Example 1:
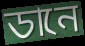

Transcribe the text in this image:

ডানে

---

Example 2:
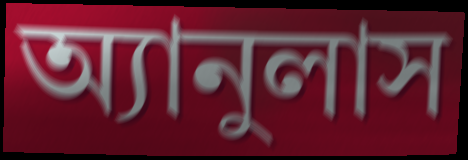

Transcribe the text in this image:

অ্যানুলাস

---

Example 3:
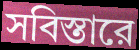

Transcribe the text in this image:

সবিস্তারে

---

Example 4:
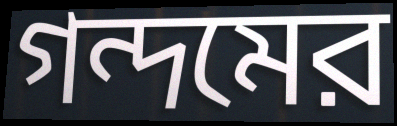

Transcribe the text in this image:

গন্দমের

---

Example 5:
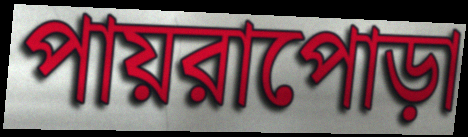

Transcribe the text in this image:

পায়রাপোড়া